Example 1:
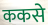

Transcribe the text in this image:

ककसे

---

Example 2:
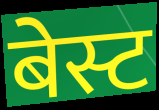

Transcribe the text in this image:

बेस्‍ट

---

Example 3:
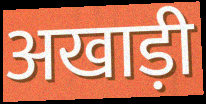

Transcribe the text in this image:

अखाड़ी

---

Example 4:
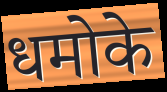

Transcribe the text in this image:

धमोके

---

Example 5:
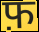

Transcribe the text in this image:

फ़